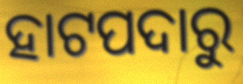
ହାଟପଦାରୁ